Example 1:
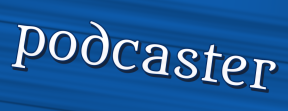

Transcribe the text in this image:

podcaster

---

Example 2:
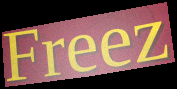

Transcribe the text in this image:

Freez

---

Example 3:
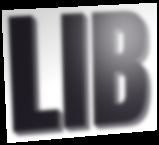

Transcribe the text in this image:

LIB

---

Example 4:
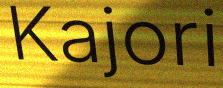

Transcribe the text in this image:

Kajori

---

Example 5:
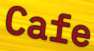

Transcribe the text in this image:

Cafe